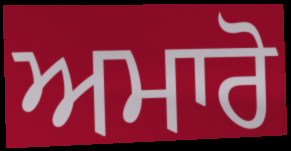
ਅਮਾਰੋ